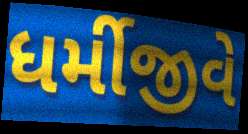
ધર્મીજીવે